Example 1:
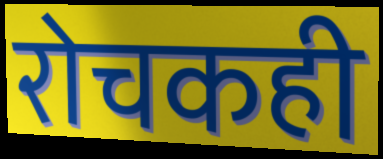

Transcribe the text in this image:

रोचकही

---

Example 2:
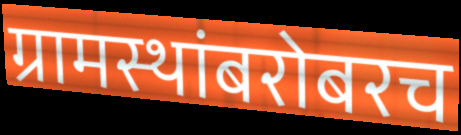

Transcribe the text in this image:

ग्रामस्थांबरोबरच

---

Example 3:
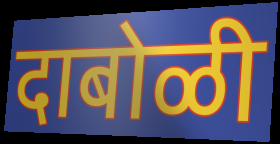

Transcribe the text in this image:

दाबोळी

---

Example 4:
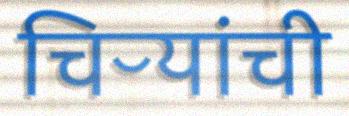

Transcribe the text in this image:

चिऱ्यांची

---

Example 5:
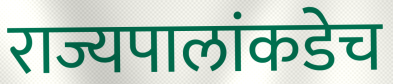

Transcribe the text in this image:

राज्यपालांकडेच